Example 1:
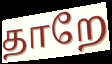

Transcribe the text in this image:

தாறே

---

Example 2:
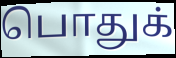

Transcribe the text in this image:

பொதுக்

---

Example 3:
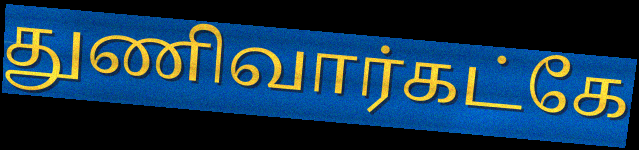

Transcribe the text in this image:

துணிவார்கட்கே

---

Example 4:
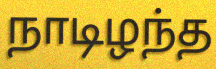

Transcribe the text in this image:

நாடிழந்த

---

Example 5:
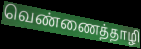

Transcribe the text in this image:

வெண்ணைத்தாழி